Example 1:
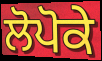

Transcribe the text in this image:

ਲੋਪੋਕੇ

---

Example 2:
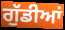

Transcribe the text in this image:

ਗੁੱਡੀਆਂ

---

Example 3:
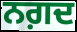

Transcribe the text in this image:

ਨਗ਼ਦ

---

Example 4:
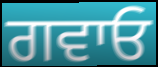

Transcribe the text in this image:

ਗਵਾਓ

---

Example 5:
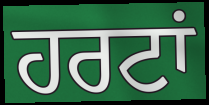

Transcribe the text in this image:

ਹਰਟਾਂ